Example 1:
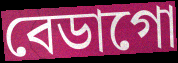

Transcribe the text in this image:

বেডাগো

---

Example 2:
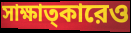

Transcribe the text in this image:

সাক্ষাত্কারেও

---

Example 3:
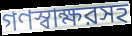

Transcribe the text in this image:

গণস্বাক্ষরসহ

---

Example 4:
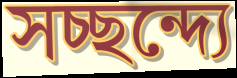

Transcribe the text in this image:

সচ্ছন্দ্যে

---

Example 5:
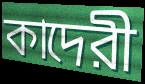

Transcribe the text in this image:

কাদেরী